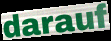
darauf